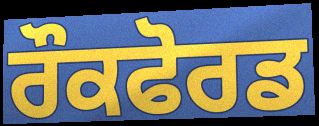
ਰੌਕਫੋਰਡ